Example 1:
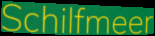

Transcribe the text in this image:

Schilfmeer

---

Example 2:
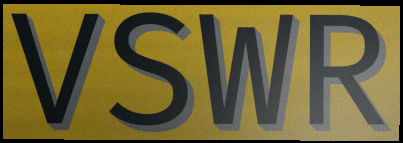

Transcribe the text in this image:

VSWR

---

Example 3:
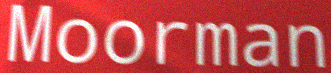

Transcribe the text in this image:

Moorman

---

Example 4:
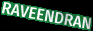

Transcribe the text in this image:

RAVEENDRAN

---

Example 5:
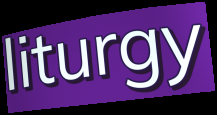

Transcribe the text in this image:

liturgy